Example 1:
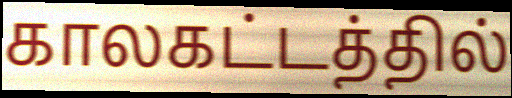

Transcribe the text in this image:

காலகட்டத்தில்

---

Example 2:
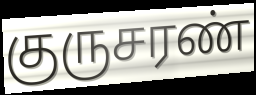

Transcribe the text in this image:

குருசரண்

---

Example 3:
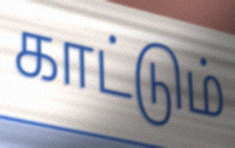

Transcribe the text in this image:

காட்டும்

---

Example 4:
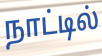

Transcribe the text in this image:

நாட்டில்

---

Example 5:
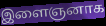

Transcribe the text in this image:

இளைஞனாக